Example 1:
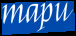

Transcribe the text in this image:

mapu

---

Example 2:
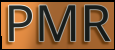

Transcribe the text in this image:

PMR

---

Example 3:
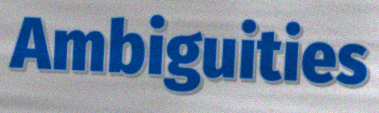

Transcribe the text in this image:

Ambiguities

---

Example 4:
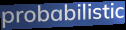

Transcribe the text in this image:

probabilistic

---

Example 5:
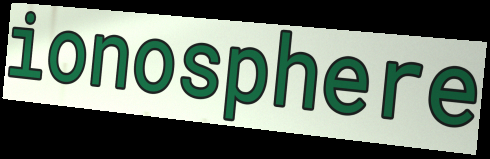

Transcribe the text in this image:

ionosphere